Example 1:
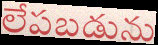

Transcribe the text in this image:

లేపబడును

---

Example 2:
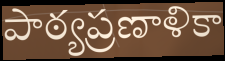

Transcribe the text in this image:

పాఠ్యప్రణాళికా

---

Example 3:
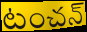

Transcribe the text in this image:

టంచన్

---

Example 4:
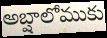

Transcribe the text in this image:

అబ్షాలోముకు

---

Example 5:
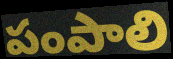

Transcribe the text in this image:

పంపాలి